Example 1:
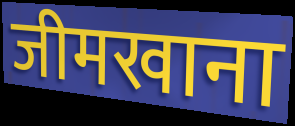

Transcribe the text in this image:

जीमखाना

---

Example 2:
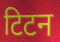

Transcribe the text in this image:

टिटन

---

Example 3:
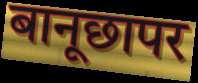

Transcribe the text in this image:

बानूछापर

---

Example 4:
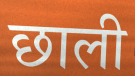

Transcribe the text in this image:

छाली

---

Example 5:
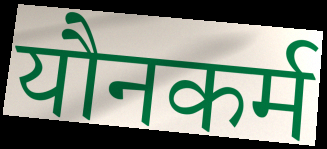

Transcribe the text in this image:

यौनकर्म